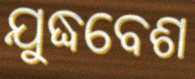
ଯୁଦ୍ଧବେଶ